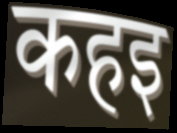
कहइ